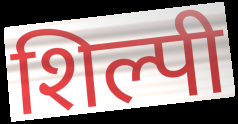
शिल्‍पी